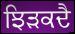
ਝਿੜਕਦੈ